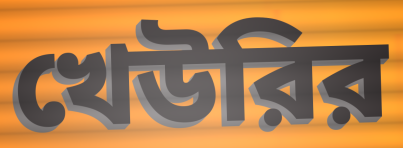
খেউরির